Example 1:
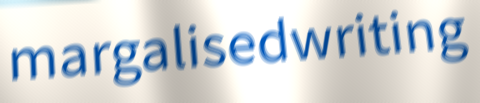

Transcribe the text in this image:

margalisedwriting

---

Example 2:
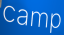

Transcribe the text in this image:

camp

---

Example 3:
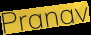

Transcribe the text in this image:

Pranav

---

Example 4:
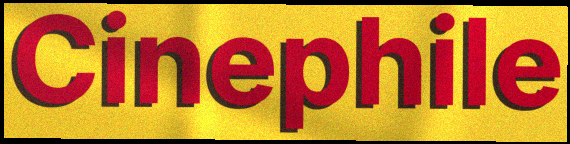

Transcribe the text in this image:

Cinephile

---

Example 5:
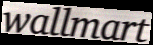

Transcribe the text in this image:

wallmart